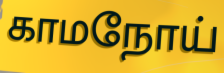
காமநோய்